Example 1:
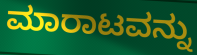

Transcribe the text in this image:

ಮಾರಾಟವನ್ನು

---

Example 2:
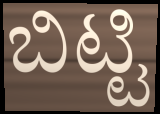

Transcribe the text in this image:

ಬಿಟ್ಟಿ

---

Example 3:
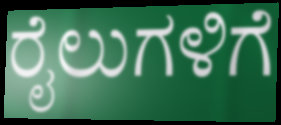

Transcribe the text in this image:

ರೈಲುಗಳಿಗೆ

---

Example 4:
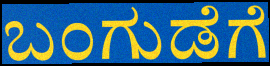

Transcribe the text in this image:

ಬಂಗುಡೆಗೆ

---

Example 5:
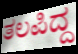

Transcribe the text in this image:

ತಲಪಿದ್ದ